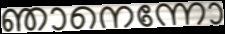
ഞാനെന്നോ